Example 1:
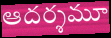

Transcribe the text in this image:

ఆదర్శమూ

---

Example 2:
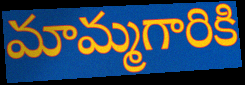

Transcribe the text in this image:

మామ్మగారికి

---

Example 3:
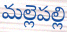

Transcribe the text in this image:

మల్లెపల్లి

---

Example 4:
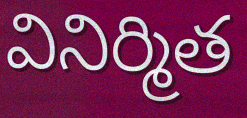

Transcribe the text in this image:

వినిర్మిత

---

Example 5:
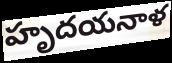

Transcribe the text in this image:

హృదయనాళ